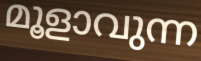
മൂളാവുന്ന